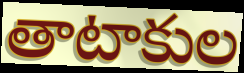
తాటాకుల